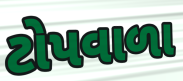
ટોપવાળા